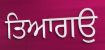
ਤਿਆਗਉ